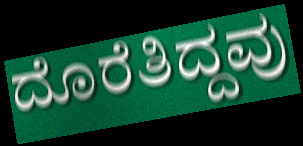
ದೊರೆತಿದ್ದವು